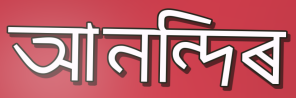
আনন্দিৰ